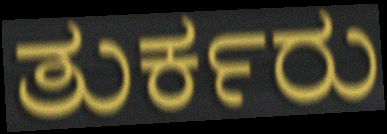
ತುರ್ಕರು